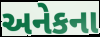
અનેકના